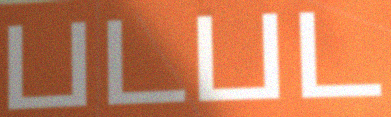
படபட